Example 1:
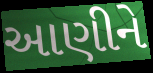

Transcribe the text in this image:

આણીને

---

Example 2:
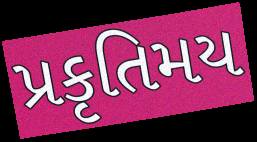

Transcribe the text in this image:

પ્રકૃતિમય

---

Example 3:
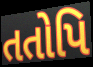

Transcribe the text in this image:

તતોપિ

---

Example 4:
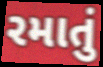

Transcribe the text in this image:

રમાતું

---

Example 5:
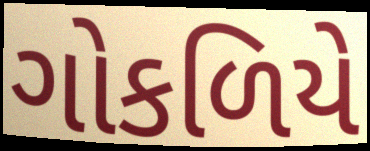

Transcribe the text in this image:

ગોકળિયે